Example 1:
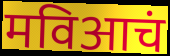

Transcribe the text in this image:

मविआचं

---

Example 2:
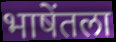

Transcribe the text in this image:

भाषेंतला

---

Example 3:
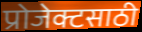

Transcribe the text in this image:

प्रोजेक्टसाठी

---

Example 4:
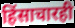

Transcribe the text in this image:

हिंसाचारही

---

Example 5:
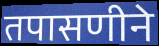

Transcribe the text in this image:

तपासणीने